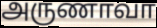
அருணாவா